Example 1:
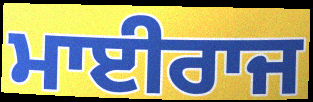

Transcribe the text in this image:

ਮਾਈਰਾਜ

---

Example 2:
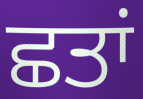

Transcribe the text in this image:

ਛਤਾਂ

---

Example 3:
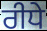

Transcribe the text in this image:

ਰੀਧੇ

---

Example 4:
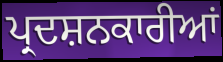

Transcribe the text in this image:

ਪ੍ਰਦਸ਼ਨਕਾਰੀਆਂ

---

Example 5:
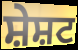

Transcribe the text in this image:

ਸ਼ੇਸ਼ਟ